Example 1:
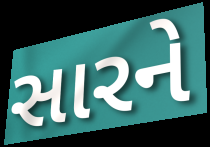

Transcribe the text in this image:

સારને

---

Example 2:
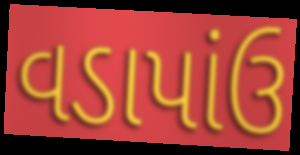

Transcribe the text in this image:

વડાપાંઉ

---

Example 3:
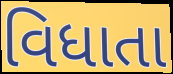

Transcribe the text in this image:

વિધાતા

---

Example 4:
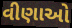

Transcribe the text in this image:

વીણાઓ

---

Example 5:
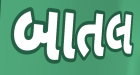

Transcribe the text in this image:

બાતલ